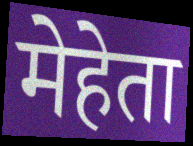
मेहेता